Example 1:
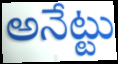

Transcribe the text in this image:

అనేట్టు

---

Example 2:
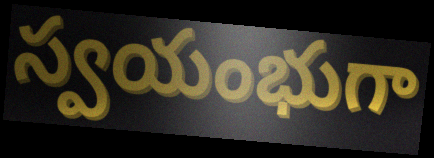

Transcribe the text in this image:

స్వయంభుగా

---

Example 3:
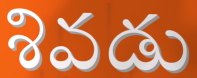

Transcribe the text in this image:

శివడు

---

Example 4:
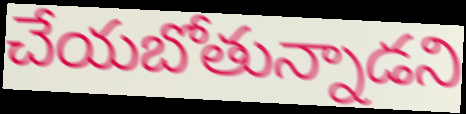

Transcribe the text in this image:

చేయబోతున్నాడని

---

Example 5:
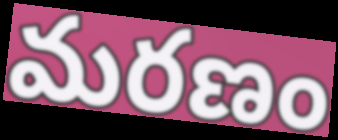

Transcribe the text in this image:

మరణం